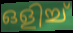
ഒളിച്ച്